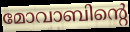
മോവാബിന്റെ